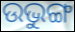
ଉଭୁଙ୍ଗ